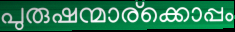
പുരുഷന്മാര്ക്കൊപ്പം